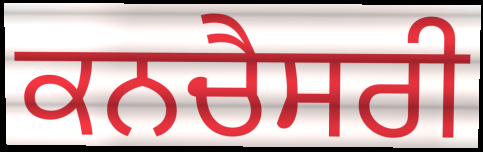
ਕਨਚੈਸਰੀ